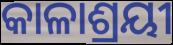
କାଳାଶ୍ରୟୀ